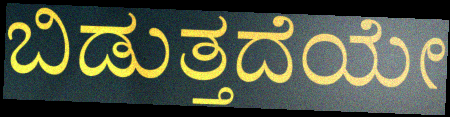
ಬಿಡುತ್ತದೆಯೇ